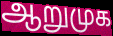
ஆறுமுக